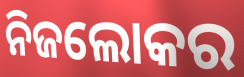
ନିଜଲୋକର